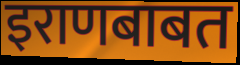
इराणबाबत